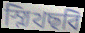
স্মিথছবি